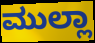
ಮುಲ್ಲಾ